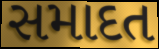
સમાદત